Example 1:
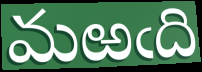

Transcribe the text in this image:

మఱఁది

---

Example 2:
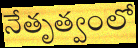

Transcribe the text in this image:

నేతృత్వంలో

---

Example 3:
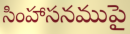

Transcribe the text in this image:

సింహాసనముపై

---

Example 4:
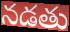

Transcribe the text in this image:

నడతు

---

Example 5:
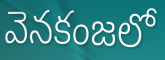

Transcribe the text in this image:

వెనకంజలో